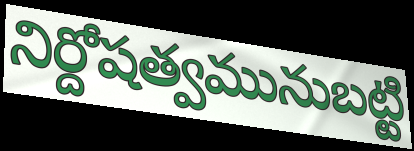
నిర్దోషత్వమునుబట్టి